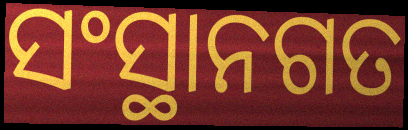
ସଂସ୍ଥାନଗତ